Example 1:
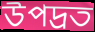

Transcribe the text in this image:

উপদ্রত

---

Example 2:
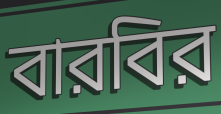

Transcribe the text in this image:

বারবির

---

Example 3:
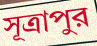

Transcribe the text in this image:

সূত্রাপুর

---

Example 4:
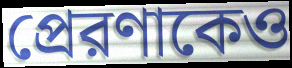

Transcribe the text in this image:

প্রেরণাকেও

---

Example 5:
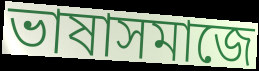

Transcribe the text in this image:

ভাষাসমাজে